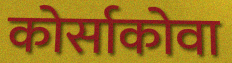
कोर्साकोवा